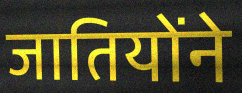
जातियोंने